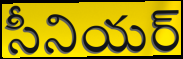
సీనియర్